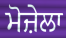
ਮੋਜ਼ੇਲਾ